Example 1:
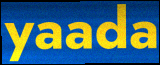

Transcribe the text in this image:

yaada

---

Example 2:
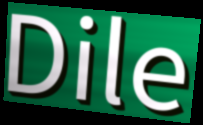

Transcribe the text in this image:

Dile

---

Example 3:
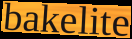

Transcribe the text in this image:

bakelite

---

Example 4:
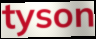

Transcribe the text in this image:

tyson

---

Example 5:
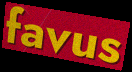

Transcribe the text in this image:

favus